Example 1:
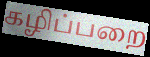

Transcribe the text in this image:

கழிப்பறை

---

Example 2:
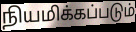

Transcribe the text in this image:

நியமிக்கப்படும்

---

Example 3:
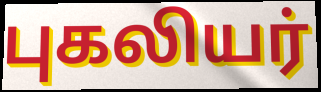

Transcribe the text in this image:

புகலியர்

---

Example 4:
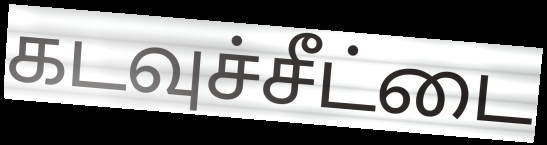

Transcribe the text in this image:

கடவுச்சீட்டை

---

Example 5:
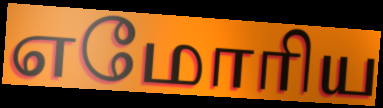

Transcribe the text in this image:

எமோரிய